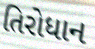
તિરોધાન